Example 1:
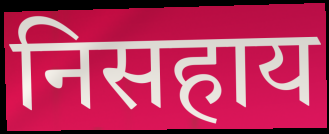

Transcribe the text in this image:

निसहाय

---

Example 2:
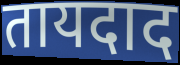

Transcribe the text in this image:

तायदाद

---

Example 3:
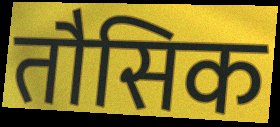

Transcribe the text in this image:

तौसिक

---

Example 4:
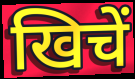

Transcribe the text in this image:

खिचें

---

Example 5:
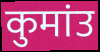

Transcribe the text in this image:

कुमांउ